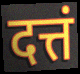
दत्तं